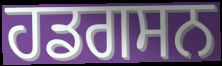
ਹਡਗਸਨ